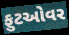
ફુટઓવર